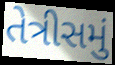
તેત્રીસમું